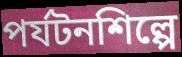
পর্যটনশিল্পে